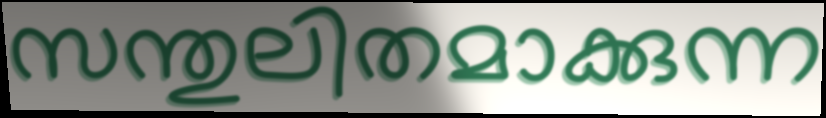
സന്തുലിതമാക്കുന്ന